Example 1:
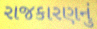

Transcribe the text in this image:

રાજકારણનું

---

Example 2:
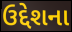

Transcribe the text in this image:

ઉદ્દેશના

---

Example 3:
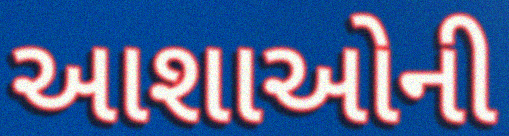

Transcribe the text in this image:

આશાઓની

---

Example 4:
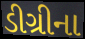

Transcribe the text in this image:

ડીગ્રીના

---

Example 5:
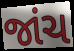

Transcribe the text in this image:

જાંચ